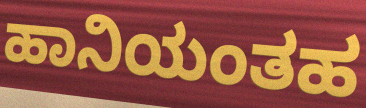
ಹಾನಿಯಂತಹ